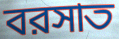
বরসাত